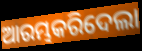
ଆରମ୍ଭକରିଦେଲା